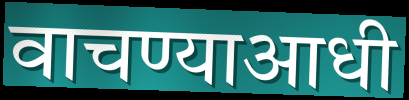
वाचण्याआधी